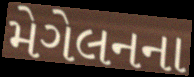
મેગેલનના